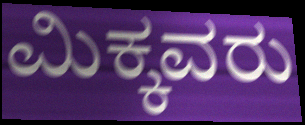
ಮಿಕ್ಕವರು